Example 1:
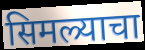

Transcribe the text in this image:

सिमल्याचा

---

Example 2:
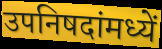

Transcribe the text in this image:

उपनिषदांमध्यें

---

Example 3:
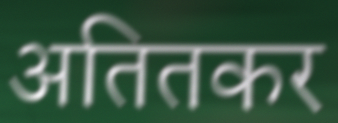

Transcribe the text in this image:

अतितकर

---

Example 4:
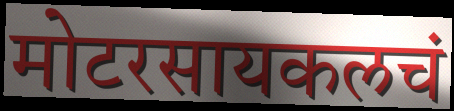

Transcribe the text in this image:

मोटरसायकलचं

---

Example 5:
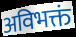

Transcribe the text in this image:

अविभक्तं